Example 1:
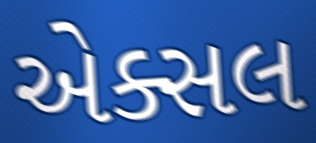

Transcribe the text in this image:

એક્સલ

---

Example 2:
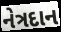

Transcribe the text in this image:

નેત્રદાન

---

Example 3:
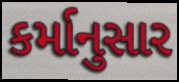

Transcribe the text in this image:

કર્માનુસાર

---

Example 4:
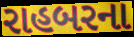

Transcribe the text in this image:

રાહબરના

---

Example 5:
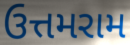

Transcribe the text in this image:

ઉત્તમરામ